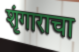
शृंगाराचा